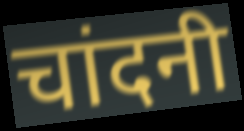
चांदनी